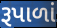
રૂપાળાં